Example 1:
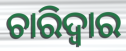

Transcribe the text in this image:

ଚାରିଦ୍ୱାର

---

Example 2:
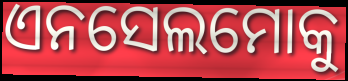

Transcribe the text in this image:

ଏନସେଲମୋକୁ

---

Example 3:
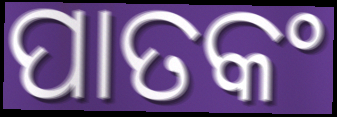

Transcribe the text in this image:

ପାତକଂ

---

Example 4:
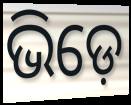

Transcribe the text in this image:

ଭିଡ଼େ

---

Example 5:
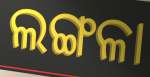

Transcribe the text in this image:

ଲଙ୍ଗଳା